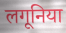
लगूनिया